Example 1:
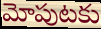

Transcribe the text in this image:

మోపుటకు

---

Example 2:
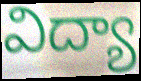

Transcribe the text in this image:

విద్యా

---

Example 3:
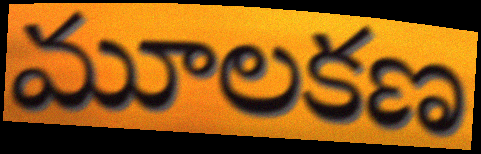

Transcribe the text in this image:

మూలకణ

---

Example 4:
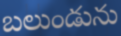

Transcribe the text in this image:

బలుండును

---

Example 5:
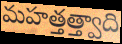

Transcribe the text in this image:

మహత్తత్త్వాది